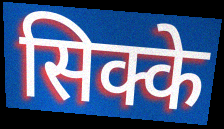
सिक्के